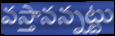
వస్తానన్నట్టు